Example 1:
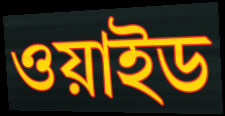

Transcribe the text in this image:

ওয়াইড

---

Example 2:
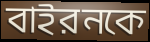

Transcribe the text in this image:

বাইরনকে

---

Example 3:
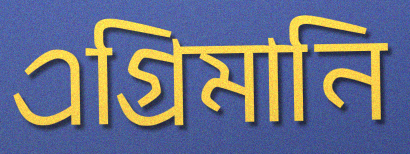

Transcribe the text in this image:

এগ্রিমানি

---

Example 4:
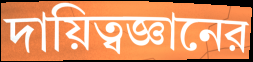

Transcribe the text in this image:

দায়িত্বজ্ঞানের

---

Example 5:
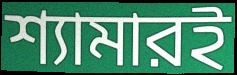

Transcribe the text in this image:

শ্যামারই